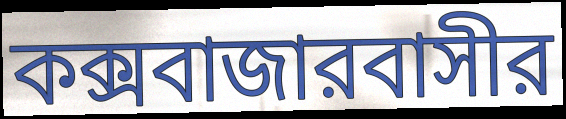
কক্সবাজারবাসীর